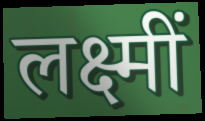
लक्ष्मीं